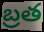
బ్రత